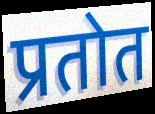
प्रतोत